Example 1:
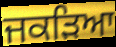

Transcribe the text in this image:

ਜਕੜਿਆ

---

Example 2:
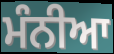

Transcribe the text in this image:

ਮੰਨੀਆ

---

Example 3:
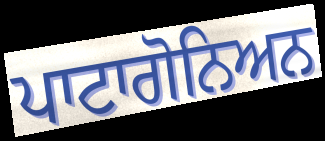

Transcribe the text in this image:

ਪਾਟਾਗੋਨਿਅਨ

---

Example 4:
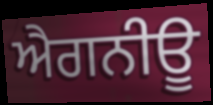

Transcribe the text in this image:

ਐਗਨੀਊ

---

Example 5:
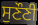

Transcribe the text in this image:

ਸੁਣੌਣੀ